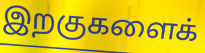
இறகுகளைக்